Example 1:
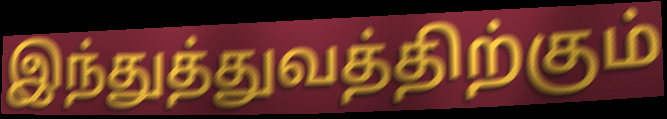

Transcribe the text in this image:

இந்துத்துவத்திற்கும்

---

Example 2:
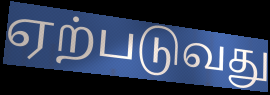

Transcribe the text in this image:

ஏற்படுவது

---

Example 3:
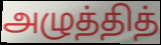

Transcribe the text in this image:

அழுத்தித்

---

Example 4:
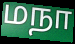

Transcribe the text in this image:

மநா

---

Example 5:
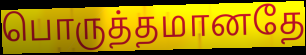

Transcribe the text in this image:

பொருத்தமானதே